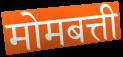
मोमबत्ती